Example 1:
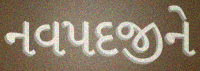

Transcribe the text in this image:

નવપદજીને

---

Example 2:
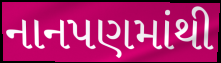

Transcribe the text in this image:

નાનપણમાંથી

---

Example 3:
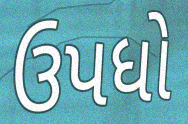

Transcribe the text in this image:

ઉપધો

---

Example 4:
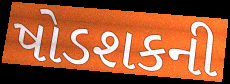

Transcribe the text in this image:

ષોડશકની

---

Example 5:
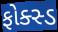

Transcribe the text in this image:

ફોક્સ્ડ